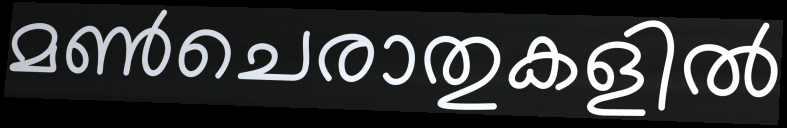
മൺചെരാതുകളിൽ